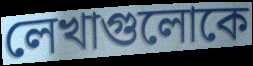
লেখাগুলোকে